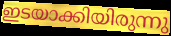
ഇടയാക്കിയിരുന്നു